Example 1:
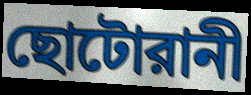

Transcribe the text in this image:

ছোটোরানী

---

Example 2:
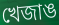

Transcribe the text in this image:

খেজাঙ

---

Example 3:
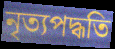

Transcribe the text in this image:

নৃত্যপদ্ধতি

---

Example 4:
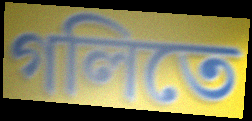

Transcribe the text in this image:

গলিতে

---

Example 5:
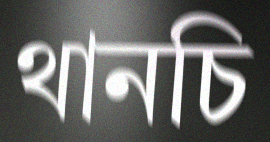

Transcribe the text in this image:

থানচি